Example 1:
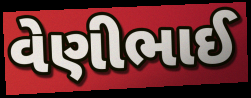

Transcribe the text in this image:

વેણીભાઈ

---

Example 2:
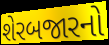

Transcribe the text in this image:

શેરબજારનો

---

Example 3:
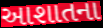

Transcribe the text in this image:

આશાતના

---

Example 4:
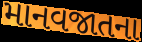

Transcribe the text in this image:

માનવજાતના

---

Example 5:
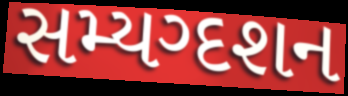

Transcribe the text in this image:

સમ્યગ્દશન